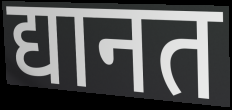
द्यानत